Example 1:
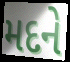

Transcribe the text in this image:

મદને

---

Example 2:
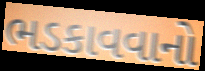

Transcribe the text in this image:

ભડકાવવાનો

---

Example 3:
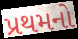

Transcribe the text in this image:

પ્રથમનો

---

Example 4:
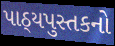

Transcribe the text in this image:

પાઠ્યપુસ્તકનો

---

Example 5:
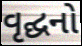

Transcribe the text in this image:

વૃદ્ઘનો